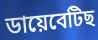
ডায়েবেটিছ